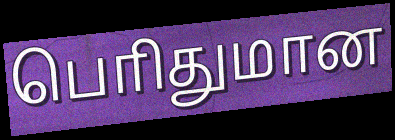
பெரிதுமான